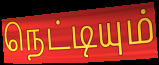
நெட்டியும்